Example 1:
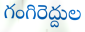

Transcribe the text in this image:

గంగిరెద్దుల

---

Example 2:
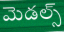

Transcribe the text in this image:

మెడల్స్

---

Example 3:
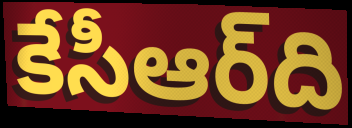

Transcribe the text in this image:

కేసీఆర్‌ది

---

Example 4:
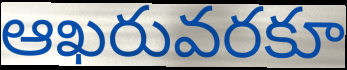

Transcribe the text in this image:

ఆఖరువరకూ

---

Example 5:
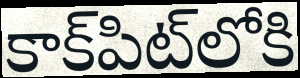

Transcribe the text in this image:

కాక్‌పిట్‌లోకి